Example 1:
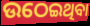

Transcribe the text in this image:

ଉଠେଇଥିବା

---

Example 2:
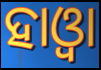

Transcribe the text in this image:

ହାଓ୍ୱା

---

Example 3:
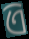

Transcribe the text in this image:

ଏି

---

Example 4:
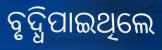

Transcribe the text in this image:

ବୃଦ୍ଧିପାଇଥିଲେ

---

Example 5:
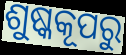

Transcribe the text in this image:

ଶୁଷ୍କକୂପରୁ